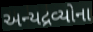
અન્યદ્રવ્યોના